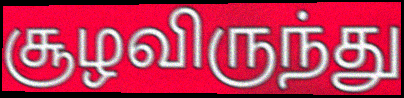
சூழவிருந்து